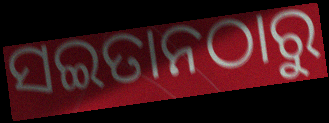
ସଇତାନଠାରୁ